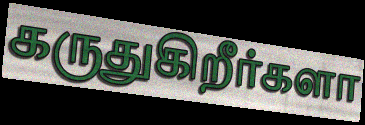
கருதுகிறீர்களா